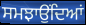
ਸਮਝਾਉਂਦਿਆਂ